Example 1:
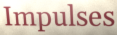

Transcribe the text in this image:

Impulses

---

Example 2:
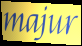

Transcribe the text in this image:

majur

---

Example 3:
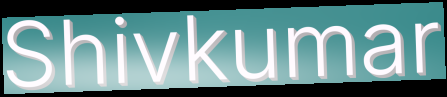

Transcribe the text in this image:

Shivkumar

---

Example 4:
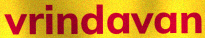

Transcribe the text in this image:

vrindavan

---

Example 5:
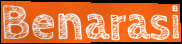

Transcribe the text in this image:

Benarasi